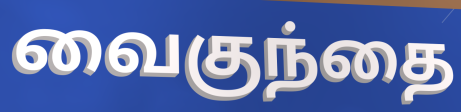
வைகுந்தை